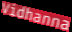
Vidhanna